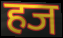
हज